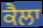
ਕੈਲਾ